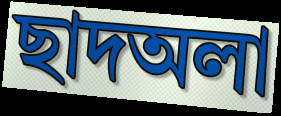
ছাদঅলা